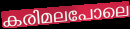
കരിമലപോലെ